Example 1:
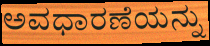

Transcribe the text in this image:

ಅವಧಾರಣೆಯನ್ನು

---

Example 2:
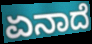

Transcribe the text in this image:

ಏನಾದೆ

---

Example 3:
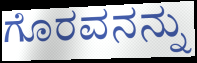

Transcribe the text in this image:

ಗೊರವನನ್ನು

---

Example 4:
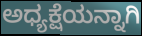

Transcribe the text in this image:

ಅಧ್ಯಕ್ಷೆಯನ್ನಾಗಿ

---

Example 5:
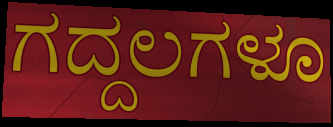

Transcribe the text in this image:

ಗದ್ದಲಗಳೂ